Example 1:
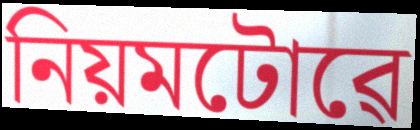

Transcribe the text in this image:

নিয়মটোৱে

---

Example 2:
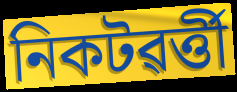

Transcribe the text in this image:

নিকটৱৰ্ত্তী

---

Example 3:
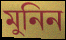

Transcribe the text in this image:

মুনিন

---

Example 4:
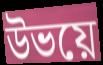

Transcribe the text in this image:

উভয়ে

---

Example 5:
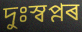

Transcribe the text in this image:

দুঃস্বপ্নৰ